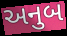
અનુબ